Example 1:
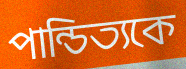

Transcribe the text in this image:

পান্ডিত্যকে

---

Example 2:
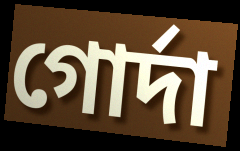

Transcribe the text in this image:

গোর্দা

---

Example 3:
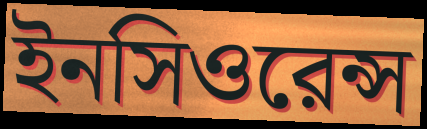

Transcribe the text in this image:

ইনসিওরেন্স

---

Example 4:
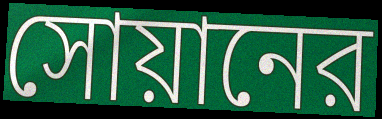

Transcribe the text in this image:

সোয়ানের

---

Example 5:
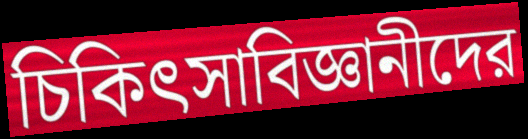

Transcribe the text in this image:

চিকিৎসাবিজ্ঞানীদের